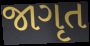
જાગૃત